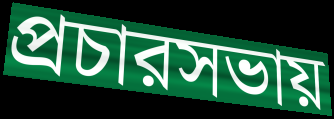
প্রচারসভায়